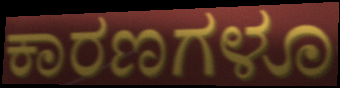
ಕಾರಣಗಳೂ